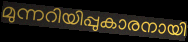
മുന്നറിയിപ്പുകാരനായി